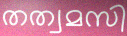
തത്വമസി